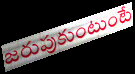
జరుపుకుంటుంటే